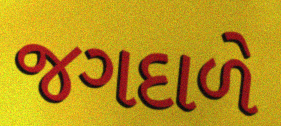
જગદાળે